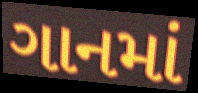
ગાનમાં